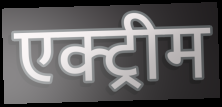
एक्ट्रीम